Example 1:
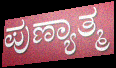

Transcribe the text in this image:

ಪುಣ್ಯಾತ್ಮ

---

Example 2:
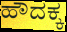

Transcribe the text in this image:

ಹೌದಕ್ಕ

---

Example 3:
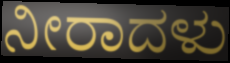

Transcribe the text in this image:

ನೀರಾದಳು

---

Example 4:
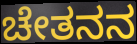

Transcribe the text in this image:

ಚೇತನನ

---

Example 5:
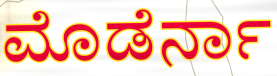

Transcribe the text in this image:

ಮೊಡೆರ್ನಾ